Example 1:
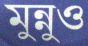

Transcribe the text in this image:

মুন্নুও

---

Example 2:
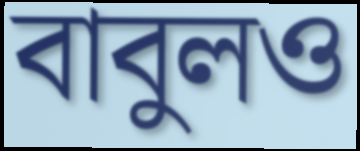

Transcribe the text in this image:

বাবুলও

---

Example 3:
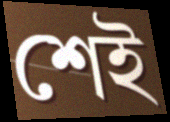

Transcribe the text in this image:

শেই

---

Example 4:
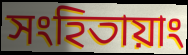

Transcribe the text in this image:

সংহিতায়াং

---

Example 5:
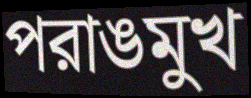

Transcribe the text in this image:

পরাঙমুখ